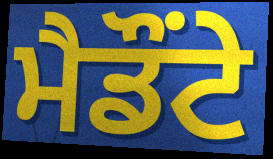
ਮੈਡੌਂਟੇ